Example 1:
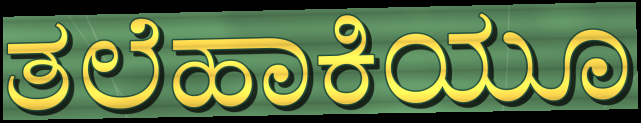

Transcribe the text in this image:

ತಲೆಹಾಕಿಯೂ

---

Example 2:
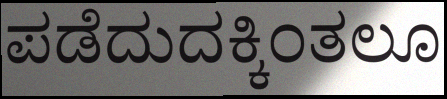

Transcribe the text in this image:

ಪಡೆದುದಕ್ಕಿಂತಲೂ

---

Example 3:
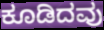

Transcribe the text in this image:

ಕೂಡಿದವು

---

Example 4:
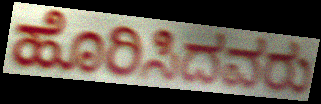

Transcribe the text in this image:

ಹೊರಿಸಿದವರು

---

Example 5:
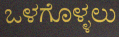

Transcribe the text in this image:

ಒಳಗೊಳ್ಳಲು